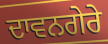
ਦਾਵਨਗੇਰੇ